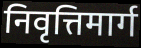
निवृत्तिमार्ग